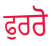
ਫੁਰਰੋ